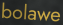
bolawe